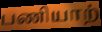
பணியாற்